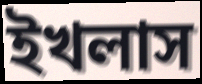
ইখলাস